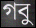
গবু